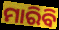
ମାରିବି